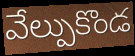
వేల్పుకొండ